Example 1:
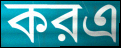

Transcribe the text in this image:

করএ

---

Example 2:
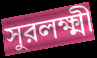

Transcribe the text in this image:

সুরলক্ষ্মী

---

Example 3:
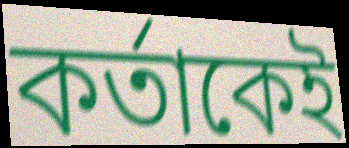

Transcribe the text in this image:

কর্তাকেই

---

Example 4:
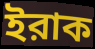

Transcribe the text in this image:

ইরাক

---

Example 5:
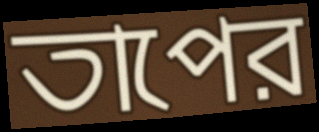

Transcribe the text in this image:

তাপের